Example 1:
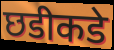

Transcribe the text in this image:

छडीकडे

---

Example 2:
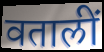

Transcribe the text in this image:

वतालीं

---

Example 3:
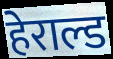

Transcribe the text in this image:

हेराल्ड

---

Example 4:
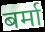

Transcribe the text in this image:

बर्मा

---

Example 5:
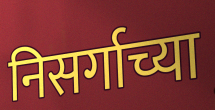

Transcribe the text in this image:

निसर्गाच्या